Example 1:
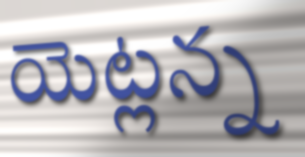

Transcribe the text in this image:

యెట్లన్న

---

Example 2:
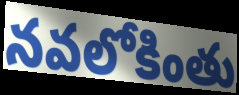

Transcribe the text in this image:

నవలోకింతు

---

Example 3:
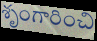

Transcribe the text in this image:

శృంగారించి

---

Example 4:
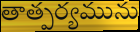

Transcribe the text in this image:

తాత్పర్యమును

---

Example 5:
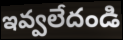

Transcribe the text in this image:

ఇవ్వలేదండి